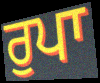
ਰੁਪਾ